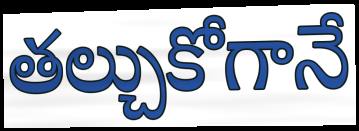
తల్చుకోగానే